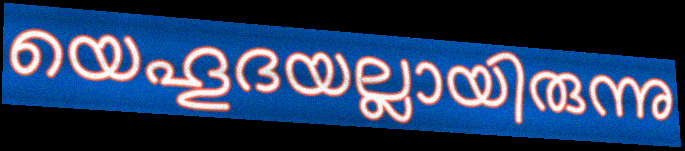
യെഹൂദയല്ലായിരുന്നു